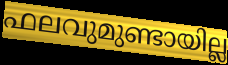
ഫലവുമുണ്ടായില്ല